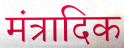
मंत्रादिक